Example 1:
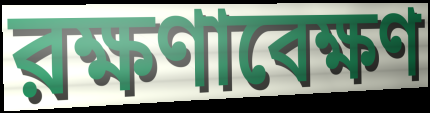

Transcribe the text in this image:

রক্ষণাবেক্ষণ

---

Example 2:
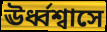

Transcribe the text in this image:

ঊর্ধ্বশ্বাসে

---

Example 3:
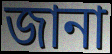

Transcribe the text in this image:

জানা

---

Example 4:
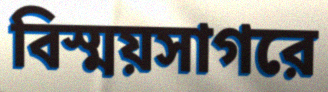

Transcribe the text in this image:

বিস্ময়সাগরে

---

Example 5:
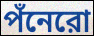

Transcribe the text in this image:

পঁনেরো